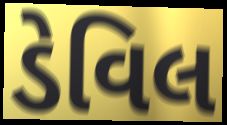
ડેવિલ